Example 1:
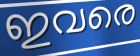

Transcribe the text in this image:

ഇവരെ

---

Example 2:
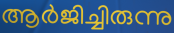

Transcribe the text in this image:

ആർജിച്ചിരുന്നു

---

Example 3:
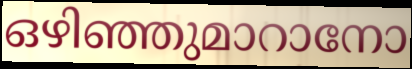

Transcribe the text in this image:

ഒഴിഞ്ഞുമാറാനോ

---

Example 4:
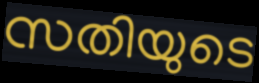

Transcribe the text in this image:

സതിയുടെ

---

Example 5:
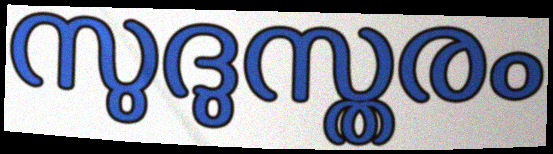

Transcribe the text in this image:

സുദുസ്തരം